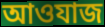
আওযাজ